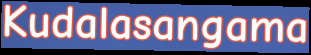
Kudalasangama